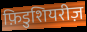
फ़िडुशियरीज़